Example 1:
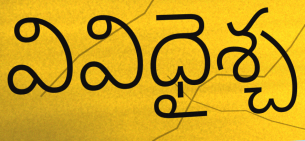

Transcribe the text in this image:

వివిధైశ్చ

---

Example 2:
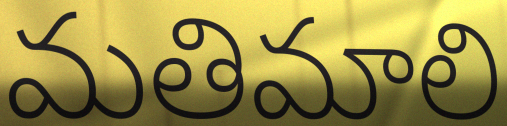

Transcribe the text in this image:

మతిమాలి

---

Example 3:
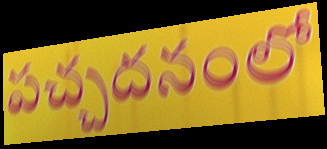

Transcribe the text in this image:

పచ్చదనంలో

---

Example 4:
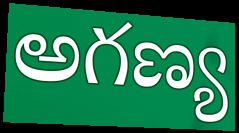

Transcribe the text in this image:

అగణ్య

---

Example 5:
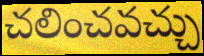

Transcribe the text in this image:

చలించవచ్చు